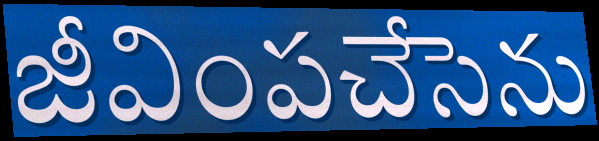
జీవింపచేసెను